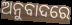
ଅନୁବାଦରେ